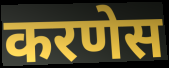
करणेस